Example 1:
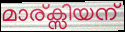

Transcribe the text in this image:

മാര്ക്സിയന്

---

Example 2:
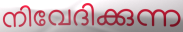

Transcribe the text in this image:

നിവേദിക്കുന്ന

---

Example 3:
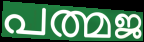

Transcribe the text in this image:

പത്മജ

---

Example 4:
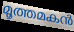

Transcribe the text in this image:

മൂത്തമകൻ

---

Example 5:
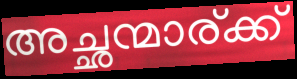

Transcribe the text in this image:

അച്ഛന്മാര്ക്ക്